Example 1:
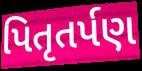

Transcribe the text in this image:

પિતૃતર્પણ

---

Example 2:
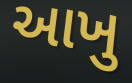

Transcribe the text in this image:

આખુ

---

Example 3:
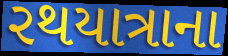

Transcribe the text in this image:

રથયાત્રાના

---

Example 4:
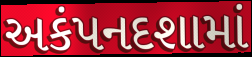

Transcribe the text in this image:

અકંપનદશામાં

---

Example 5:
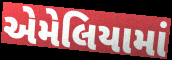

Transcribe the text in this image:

એમેલિયામાં